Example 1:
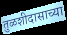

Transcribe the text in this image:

तुळशीदासाच्या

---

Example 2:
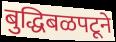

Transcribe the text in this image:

बुद्धिबळपटूने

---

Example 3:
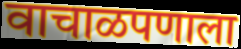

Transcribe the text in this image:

वाचाळपणाला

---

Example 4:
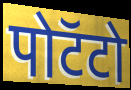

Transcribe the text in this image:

पोटॅटो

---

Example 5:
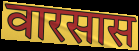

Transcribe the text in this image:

वारसास